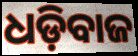
ଧଡ଼ିବାଜ